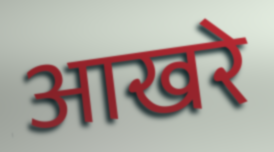
आखरे